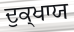
ਦੁਕ੍ਖਾਯ